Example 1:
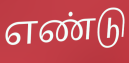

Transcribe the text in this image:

எண்டு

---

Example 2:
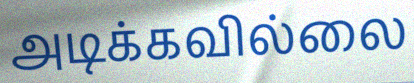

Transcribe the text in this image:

அடிக்கவில்லை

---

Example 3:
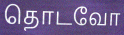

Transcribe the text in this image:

தொடவோ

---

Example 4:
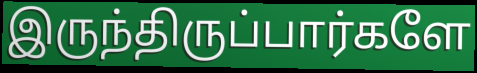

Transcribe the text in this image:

இருந்திருப்பார்களே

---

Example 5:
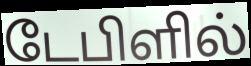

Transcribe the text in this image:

டேபிளில்